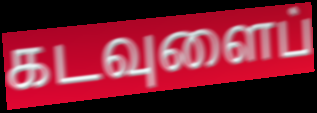
கடவுளைப்